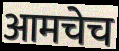
आमचेच